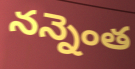
నన్నెంత